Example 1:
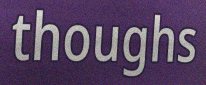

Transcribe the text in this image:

thoughs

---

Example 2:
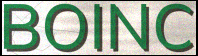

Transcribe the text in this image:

BOINC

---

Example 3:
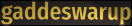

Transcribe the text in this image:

gaddeswarup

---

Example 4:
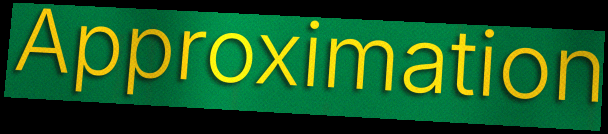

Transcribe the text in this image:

Approximation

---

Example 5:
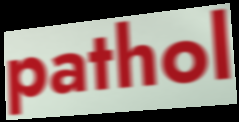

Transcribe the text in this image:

pathol